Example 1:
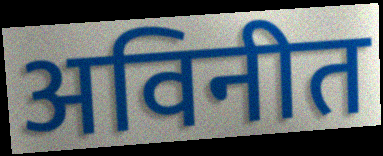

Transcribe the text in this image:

अविनीत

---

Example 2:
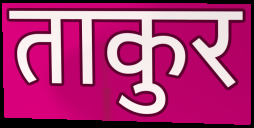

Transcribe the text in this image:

ताकुर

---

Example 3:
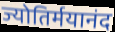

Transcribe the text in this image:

ज्योतिर्मयानंद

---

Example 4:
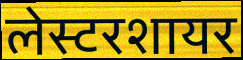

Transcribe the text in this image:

लेस्टरशायर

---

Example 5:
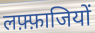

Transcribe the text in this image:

लफ़्फ़ाजियों